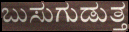
ಬುಸುಗುಡುತ್ತ